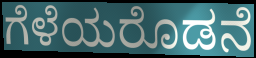
ಗೆಳೆಯರೊಡನೆ